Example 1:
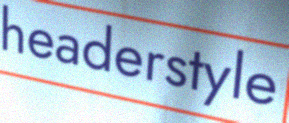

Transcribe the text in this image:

headerstyle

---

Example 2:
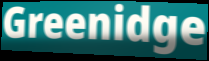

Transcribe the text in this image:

Greenidge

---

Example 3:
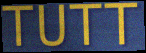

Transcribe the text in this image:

TUTT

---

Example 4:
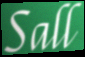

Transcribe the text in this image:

Sall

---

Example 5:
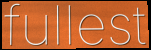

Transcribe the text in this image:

fullest